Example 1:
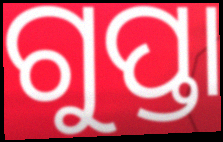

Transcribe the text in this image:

ଗୁପ୍ତା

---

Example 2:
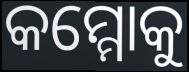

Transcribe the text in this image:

କମ୍ମୋକୁ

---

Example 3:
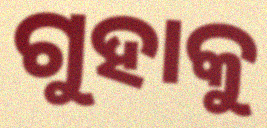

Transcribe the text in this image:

ଗୁହାକୁ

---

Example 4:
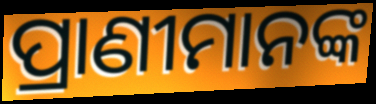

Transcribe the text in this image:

ପ୍ରାଣୀମାନଙ୍କ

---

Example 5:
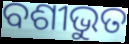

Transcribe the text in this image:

ବଶୀଭୁତ